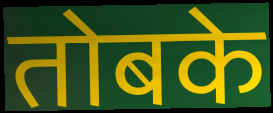
तोबके